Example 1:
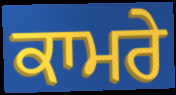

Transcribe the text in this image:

ਕਾਮਰੇ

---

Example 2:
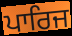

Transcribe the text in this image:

ਪਾਰਿਜ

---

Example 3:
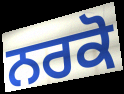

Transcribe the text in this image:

ਨਰਕੋ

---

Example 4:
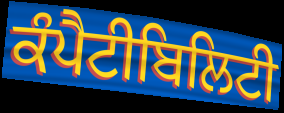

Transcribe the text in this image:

ਕੰਪੈਟੀਬਿਲਿਟੀ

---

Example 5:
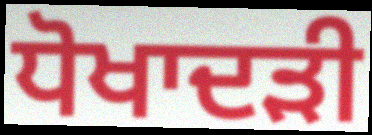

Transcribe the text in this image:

ਧੋਖਾਦੜੀ